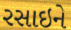
રસાઇને